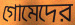
গোমেদের